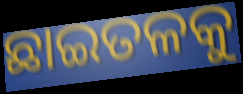
ଛାଇତଳକୁ